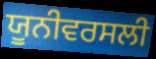
ਯੂਨੀਵਰਸਲੀ